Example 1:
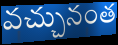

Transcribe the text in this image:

వచ్చునంత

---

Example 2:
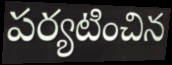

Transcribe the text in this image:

పర్యటించిన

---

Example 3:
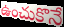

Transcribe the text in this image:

ఉంచుకొనే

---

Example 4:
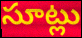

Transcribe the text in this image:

సూట్లు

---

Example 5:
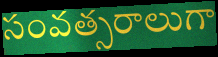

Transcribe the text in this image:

సంవత్సరాలుగా